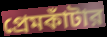
প্রেমকাঁটার